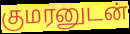
குமரனுடன்